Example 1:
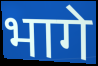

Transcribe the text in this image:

भागे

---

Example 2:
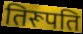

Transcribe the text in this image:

तिरूपति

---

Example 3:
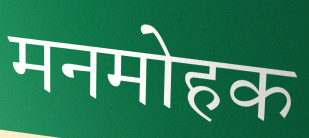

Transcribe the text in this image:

मनमोहक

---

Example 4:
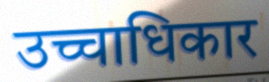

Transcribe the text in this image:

उच्‍चाधिकार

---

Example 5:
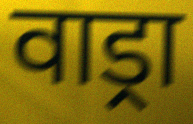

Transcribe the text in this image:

वाड्रा